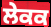
ਲੇਕਕ